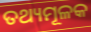
ତଥ୍ୟମୂଳକ